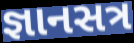
જ્ઞાનસત્ર